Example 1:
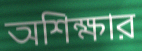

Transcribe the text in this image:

অশিক্ষার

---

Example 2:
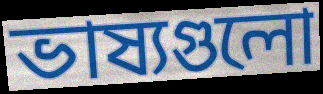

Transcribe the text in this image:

ভাষ্যগুলো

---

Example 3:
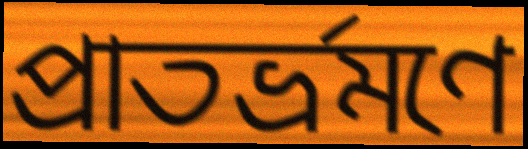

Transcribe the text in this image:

প্রাতর্ভ্রমণে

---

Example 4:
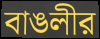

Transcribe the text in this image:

বাঙলীর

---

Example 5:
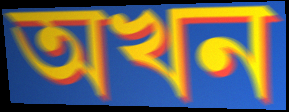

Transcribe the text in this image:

অখন